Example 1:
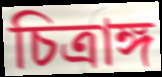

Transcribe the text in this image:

চিত্রাঙ্গ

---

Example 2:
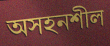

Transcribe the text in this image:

অসহনশীল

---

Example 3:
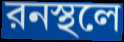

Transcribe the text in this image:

রনস্থলে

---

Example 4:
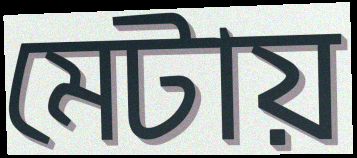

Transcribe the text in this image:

মেটায়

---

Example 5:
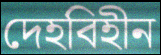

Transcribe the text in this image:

দেহবিহীন